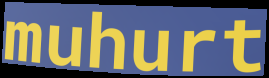
muhurt